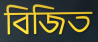
বিজিত